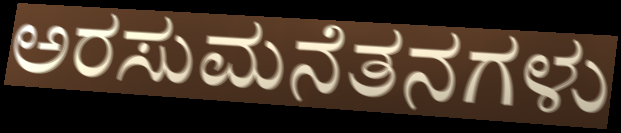
ಅರಸುಮನೆತನಗಳು